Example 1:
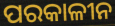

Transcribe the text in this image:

ପରକାଳୀନ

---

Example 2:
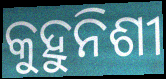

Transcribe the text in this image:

କୁହୁନିଶୀ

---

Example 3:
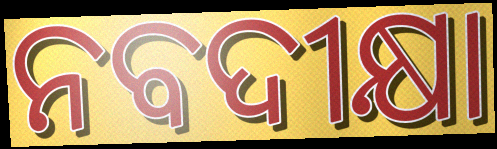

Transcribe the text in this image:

ନବଦୀକ୍ଷା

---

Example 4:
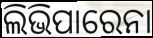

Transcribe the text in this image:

ଲିଭିପାରେନା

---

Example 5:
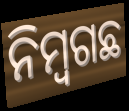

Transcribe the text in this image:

ନିମ୍ୱଗଛ